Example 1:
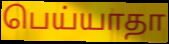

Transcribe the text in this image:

பெய்யாதா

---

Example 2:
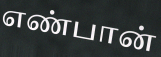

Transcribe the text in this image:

எண்பான்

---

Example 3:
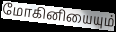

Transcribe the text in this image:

மோகினியையும்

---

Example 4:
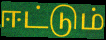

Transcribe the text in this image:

ஈட்டும்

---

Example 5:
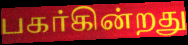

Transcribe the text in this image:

பகர்கின்றது